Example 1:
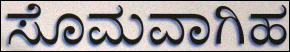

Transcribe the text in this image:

ಸೊಮವಾಗಿಹ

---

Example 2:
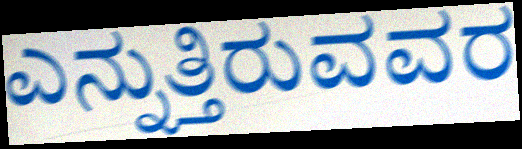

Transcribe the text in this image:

ಎನ್ನುತ್ತಿರುವವರ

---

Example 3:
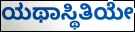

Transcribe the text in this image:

ಯಥಾಸ್ಥಿತಿಯೇ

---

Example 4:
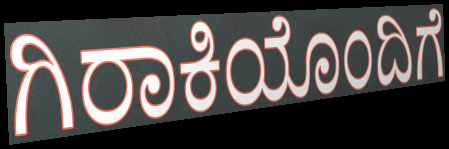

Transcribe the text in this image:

ಗಿರಾಕಿಯೊಂದಿಗೆ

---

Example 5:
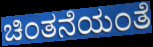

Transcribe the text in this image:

ಚಿಂತನೆಯಂತೆ